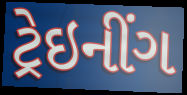
ટ્રેઇનીંગ